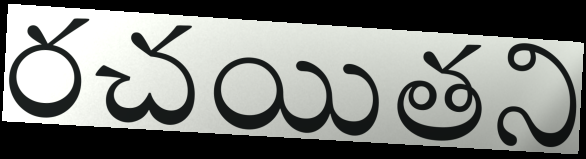
రచయితని